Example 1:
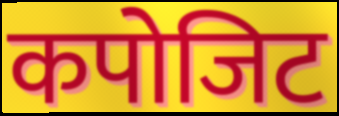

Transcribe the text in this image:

कपोजिट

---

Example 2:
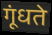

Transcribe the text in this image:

गूंधते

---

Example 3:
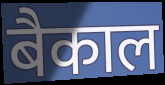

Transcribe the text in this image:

बैकाल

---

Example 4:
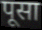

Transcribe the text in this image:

पूसा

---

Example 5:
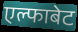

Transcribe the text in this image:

एल्फाबेट